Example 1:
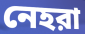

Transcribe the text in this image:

নেহরা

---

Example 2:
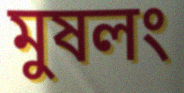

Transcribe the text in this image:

মুষলং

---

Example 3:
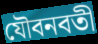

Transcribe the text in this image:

যৌবনবতী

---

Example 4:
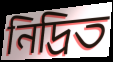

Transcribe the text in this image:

নিদ্রিত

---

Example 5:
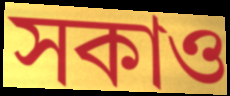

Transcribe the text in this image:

সকাও